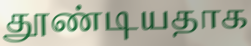
தூண்டியதாக